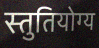
स्तुतियोग्य